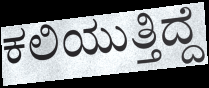
ಕಲಿಯುತ್ತಿದ್ದೆ